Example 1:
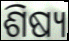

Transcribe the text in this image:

ଶିଷ୍ଯ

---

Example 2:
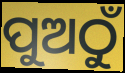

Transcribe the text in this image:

ପୁଅଠୁଁ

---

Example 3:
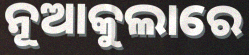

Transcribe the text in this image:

ନୂଆକୁଲାରେ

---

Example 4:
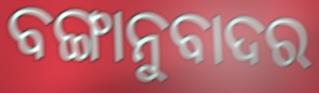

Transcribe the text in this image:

ବଙ୍ଗାନୁବାଦର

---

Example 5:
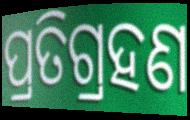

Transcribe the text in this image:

ପ୍ରତିଗ୍ରହଣ